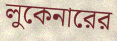
লুকেনারের